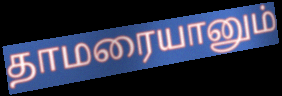
தாமரையானும்